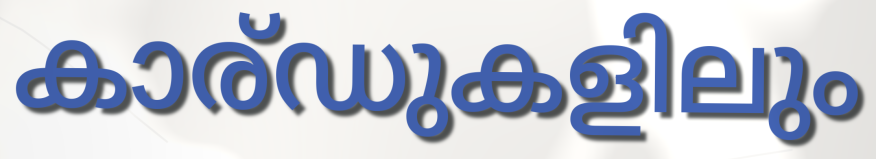
കാര്ഡുകളിലും